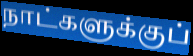
நாட்களுக்குப்